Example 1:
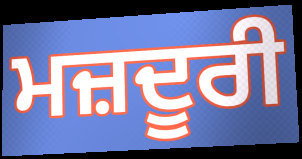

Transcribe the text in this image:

ਮਜ਼ਦੂਰੀ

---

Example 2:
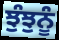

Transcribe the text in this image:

ਝੁੰਝੁਨੂੰ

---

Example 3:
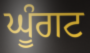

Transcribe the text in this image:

ਘੂੰਗਟ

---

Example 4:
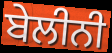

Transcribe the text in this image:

ਬੇਲੀਨੀ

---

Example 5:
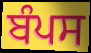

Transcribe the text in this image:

ਬੰਪਸ